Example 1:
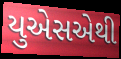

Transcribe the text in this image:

યુએસએથી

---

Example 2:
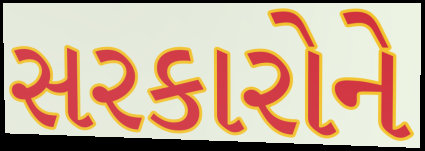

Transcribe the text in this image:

સરકારોને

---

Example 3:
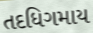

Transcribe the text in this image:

તદધિગમાય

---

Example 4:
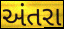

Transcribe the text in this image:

અંતરા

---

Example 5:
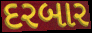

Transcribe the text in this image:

દરબાર